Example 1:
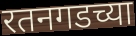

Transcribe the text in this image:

रतनगडच्या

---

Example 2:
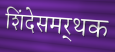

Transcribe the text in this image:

शिंदेसमर्थक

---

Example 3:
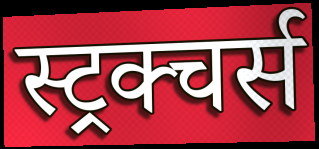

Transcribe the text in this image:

स्ट्रक्चर्स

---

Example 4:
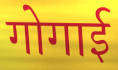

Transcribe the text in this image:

गोगाई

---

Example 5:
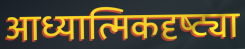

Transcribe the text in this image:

आध्यात्मिकदृष्ट्या